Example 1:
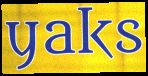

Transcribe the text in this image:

yaks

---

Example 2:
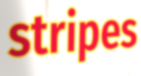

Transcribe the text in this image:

stripes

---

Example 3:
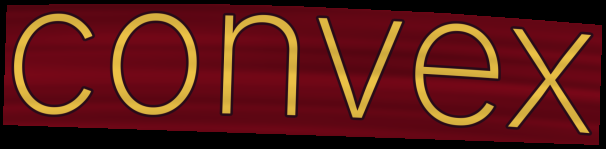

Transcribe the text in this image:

convex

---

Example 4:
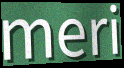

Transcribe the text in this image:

meri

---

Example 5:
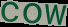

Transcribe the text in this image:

cow